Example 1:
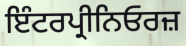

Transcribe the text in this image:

ਇੰਟਰਪ੍ਰੀਨਿਓਰਜ਼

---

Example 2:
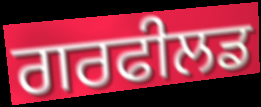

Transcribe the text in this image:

ਗਰਫੀਲਡ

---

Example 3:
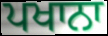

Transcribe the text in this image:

ਪਖਾਨਾ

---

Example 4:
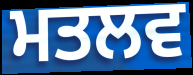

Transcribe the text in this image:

ਮਤਲਵ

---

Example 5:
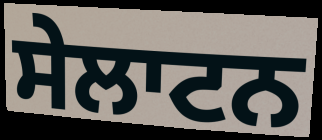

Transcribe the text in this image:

ਸੇਲਾਟਨ